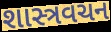
શાસ્ત્રવચન